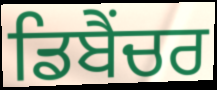
ਡਿਬੈਂਚਰ